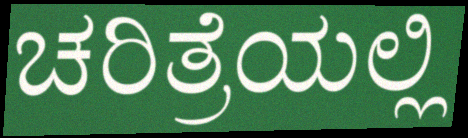
ಚರಿತ್ರೆಯಲ್ಲಿ